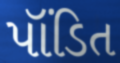
પૉંડિત